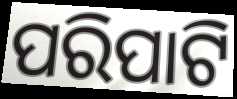
ପରିପାଟି